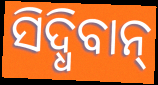
ସିଦ୍ଧିବାନ୍